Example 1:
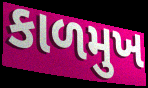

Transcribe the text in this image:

કાળમુખ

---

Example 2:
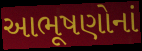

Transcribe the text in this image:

આભૂષણોનાં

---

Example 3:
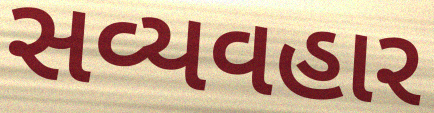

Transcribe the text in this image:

સવ્યવહાર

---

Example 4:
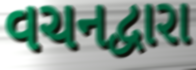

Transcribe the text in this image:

વચનદ્વારા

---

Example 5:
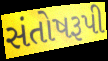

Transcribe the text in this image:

સંતોષરૂપી